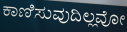
ಕಾಣಿಸುವುದಿಲ್ಲವೋ